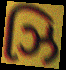
ઝિ